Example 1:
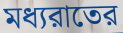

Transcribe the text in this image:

মধ্যরাতের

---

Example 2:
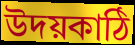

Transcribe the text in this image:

উদয়কাঠি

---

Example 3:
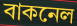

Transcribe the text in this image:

বাকনেল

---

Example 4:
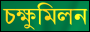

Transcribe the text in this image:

চক্ষুমিলন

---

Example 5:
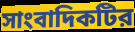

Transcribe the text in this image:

সাংবাদিকটির